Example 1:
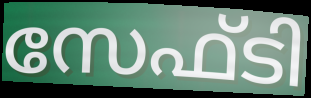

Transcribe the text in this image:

സേഫ്ടി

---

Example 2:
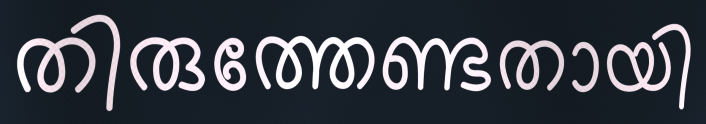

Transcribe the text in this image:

തിരുത്തേണ്ടതായി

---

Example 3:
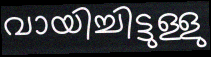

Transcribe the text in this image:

വായിച്ചിട്ടുള്ളു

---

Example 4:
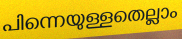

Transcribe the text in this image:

പിന്നെയുള്ളതെല്ലാം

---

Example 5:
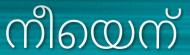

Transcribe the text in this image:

നീയെന്